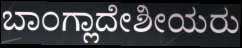
ಬಾಂಗ್ಲಾದೇಶೀಯರು